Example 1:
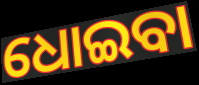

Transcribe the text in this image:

ଧୋଇବା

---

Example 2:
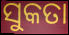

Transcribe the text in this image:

ସୁକତା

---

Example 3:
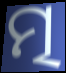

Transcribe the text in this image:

ତ୍ମ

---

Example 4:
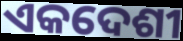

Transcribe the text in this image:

ଏକଦେଶୀ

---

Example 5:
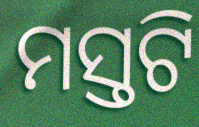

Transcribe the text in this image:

ମସ୍ତଟି